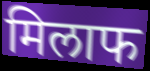
मिलाफ